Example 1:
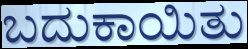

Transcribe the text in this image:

ಬದುಕಾಯಿತು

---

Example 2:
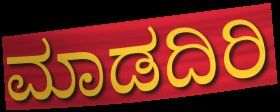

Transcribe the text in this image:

ಮಾಡದಿರಿ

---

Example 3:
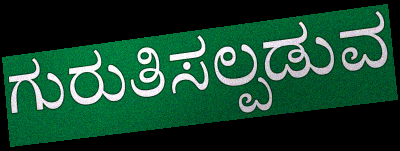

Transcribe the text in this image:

ಗುರುತಿಸಲ್ಪಡುವ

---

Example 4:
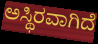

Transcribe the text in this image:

ಅಸ್ಥಿರವಾಗಿದೆ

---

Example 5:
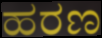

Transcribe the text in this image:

ಹರಣ